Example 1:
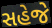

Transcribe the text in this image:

સહેજે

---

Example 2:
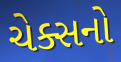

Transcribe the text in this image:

ચેક્સનો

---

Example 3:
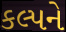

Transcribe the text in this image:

કલ્પને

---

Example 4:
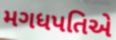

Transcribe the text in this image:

મગધપતિએ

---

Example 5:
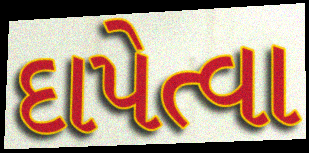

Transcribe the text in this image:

દાપેત્વા